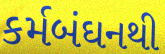
કર્મબંઘનથી